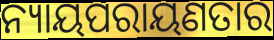
ନ୍ୟାୟପରାୟଣତାର